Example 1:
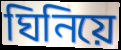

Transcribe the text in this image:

ঘিনিয়ে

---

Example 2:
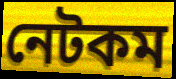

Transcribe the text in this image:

নেটকম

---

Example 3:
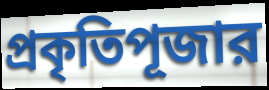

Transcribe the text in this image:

প্রকৃতিপূজার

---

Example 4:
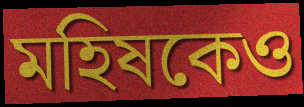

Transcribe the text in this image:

মহিষকেও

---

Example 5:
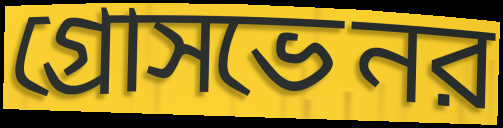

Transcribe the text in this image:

গ্রোসভেনর